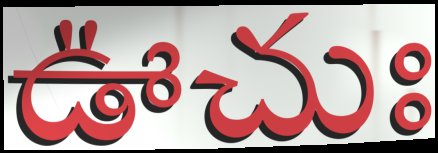
ఊచుః